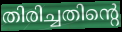
തിരിച്ചതിന്റെ